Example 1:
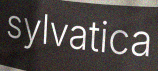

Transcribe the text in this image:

sylvatica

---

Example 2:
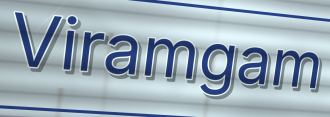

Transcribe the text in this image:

Viramgam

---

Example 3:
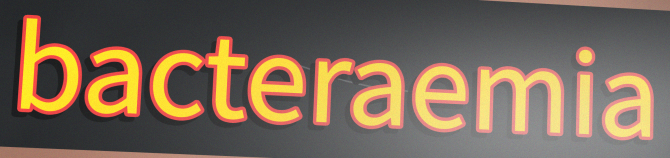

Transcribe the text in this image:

bacteraemia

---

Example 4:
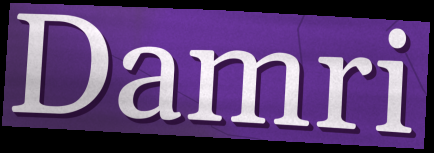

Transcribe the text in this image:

Damri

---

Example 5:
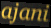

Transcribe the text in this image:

ajani